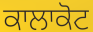
ਕਾਲਾਕੋਟ